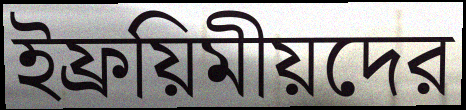
ইফ্রয়িমীয়দের